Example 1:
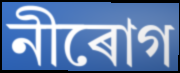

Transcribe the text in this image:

নীৰোগ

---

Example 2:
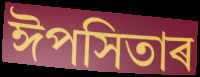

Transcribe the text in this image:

ঈপসিতাৰ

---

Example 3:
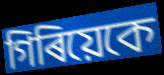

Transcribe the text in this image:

গিৰিয়েকে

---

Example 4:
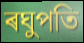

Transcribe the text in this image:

ৰঘুপতি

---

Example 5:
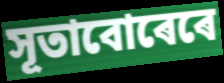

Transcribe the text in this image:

সূতাবোৰেৰে